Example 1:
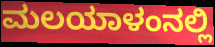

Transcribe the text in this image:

ಮಲಯಾಳಂನಲ್ಲಿ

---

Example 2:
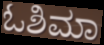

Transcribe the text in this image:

ಓಶಿಮಾ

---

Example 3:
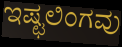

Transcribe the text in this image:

ಇಷ್ಟಲಿಂಗವು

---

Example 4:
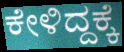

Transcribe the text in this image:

ಕೇಳಿದ್ದಕ್ಕೆ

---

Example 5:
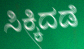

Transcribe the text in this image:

ಸಿಕ್ಕಿದಡೆ